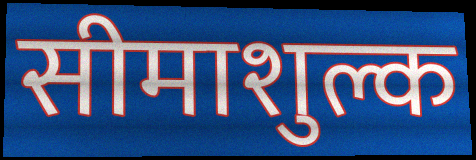
सीमाशुल्क